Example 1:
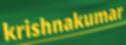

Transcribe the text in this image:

krishnakumar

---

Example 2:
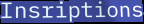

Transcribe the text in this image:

Insriptions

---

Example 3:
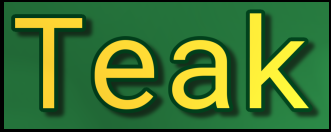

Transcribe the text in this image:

Teak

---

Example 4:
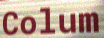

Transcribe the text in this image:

Colum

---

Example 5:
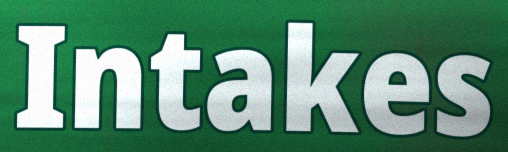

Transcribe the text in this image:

Intakes